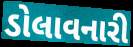
ડોલાવનારી